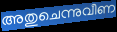
അതുചെന്നുവീണ